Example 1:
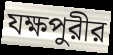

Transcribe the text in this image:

যক্ষপুরীর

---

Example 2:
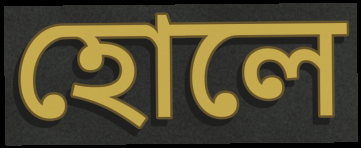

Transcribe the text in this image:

হোলে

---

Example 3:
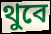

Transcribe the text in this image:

থুবে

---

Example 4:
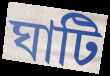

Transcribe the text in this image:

ঘাটি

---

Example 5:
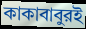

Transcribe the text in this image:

কাকাবাবুরই